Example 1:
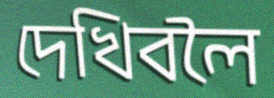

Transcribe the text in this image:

দেখিবলৈ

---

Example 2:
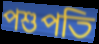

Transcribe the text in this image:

পশুপতি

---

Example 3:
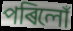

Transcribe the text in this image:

পৰিলোঁ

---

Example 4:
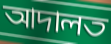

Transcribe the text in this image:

আদালত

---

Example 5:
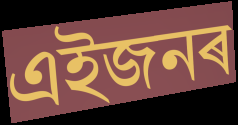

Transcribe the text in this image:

এইজনৰ